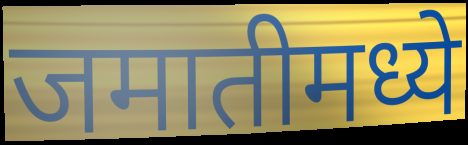
जमातीमध्ये